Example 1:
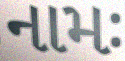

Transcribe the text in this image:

નામઃ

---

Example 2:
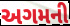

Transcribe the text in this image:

અગમની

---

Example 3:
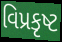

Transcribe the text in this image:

વિપ્રકૃષ્ટ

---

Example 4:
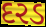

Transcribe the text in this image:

દરડ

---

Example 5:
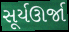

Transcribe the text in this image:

સૂર્યઊર્જા